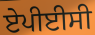
ਏਪੀਈਸੀ